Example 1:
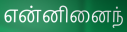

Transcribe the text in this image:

என்னினைந்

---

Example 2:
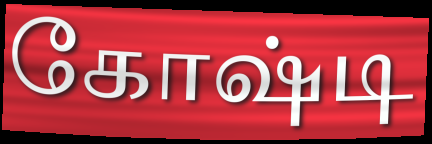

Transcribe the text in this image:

கோஷ்டி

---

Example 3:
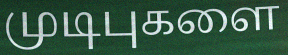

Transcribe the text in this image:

முடிபுகளை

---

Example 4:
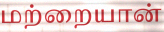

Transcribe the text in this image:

மற்றையான்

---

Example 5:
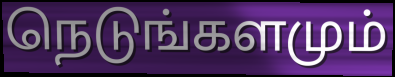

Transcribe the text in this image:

நெடுங்களமும்